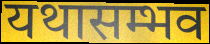
यथासम्भव